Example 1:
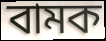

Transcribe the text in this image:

বামক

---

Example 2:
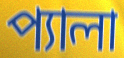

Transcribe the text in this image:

প্যালা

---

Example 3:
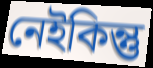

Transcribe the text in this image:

নেইকিন্তু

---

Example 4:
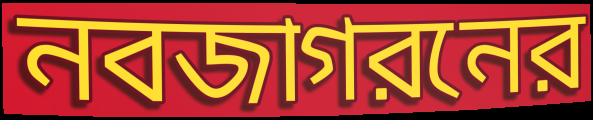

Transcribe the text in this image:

নবজাগরনের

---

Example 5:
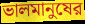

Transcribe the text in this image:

ভালমানুষের